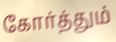
கோர்த்தும்